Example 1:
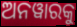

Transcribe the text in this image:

ଅନୱାରକୁ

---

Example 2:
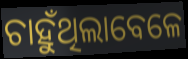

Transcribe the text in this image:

ଚାହୁଁଥିଲାବେଳେ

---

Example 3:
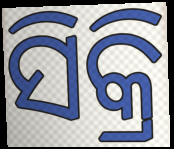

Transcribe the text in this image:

ସିକ୍ରି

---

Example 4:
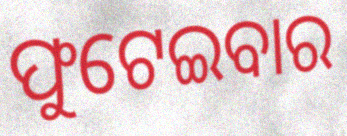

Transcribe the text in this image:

ଫୁଟେଇବାର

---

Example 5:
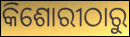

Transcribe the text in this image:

କିଶୋରୀଠାରୁ